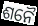
ଶନୈ